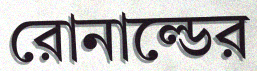
রোনাল্ডের